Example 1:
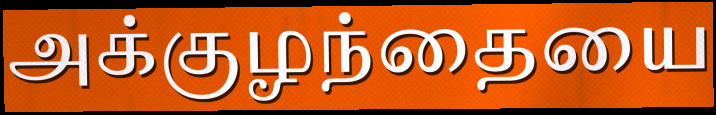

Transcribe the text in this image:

அக்குழந்தையை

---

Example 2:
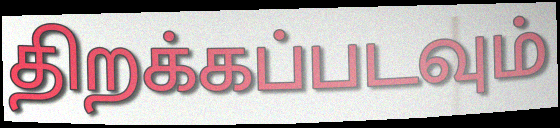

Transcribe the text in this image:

திறக்கப்படவும்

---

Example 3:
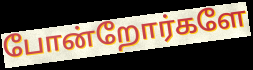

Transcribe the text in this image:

போன்றோர்களே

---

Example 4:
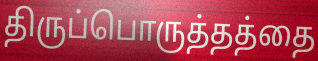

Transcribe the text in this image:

திருப்பொருத்தத்தை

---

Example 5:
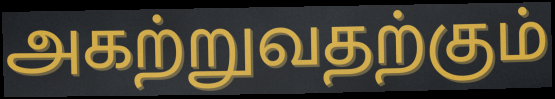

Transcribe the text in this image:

அகற்றுவதற்கும்